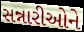
સન્નારીઓને